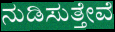
ನುಡಿಸುತ್ತೇವೆ